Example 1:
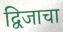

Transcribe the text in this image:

द्विजाचा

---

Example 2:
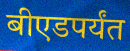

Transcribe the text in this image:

बीएडपर्यंत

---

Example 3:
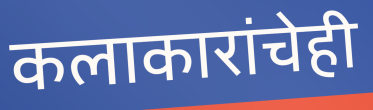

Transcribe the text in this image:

कलाकारांचेही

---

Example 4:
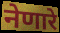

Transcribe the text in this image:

नेणारे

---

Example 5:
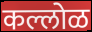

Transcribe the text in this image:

कल्लोळ